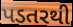
પડતરથી